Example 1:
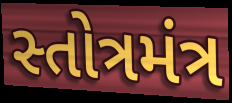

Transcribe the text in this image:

સ્તોત્રમંત્ર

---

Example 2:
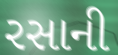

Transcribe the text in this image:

રસાની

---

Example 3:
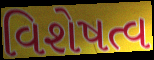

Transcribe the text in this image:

વિશેષત્વ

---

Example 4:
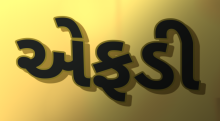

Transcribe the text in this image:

એફડી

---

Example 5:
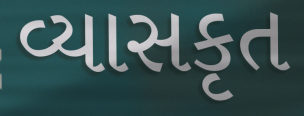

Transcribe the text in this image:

વ્યાસકૃત